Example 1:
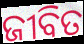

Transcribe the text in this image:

ଜୀବିତ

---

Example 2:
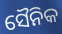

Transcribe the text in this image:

ସୈନିକ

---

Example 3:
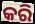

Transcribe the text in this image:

କରି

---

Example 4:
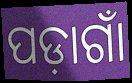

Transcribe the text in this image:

ପଡ଼ାଗାଁ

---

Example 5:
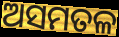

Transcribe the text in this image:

ଅସମତଳ